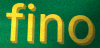
fino